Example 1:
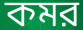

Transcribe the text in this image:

কমর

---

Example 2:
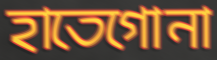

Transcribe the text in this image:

হাতেগোনা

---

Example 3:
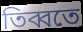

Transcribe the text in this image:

তিব্বতে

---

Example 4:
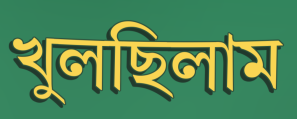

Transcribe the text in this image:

খুলছিলাম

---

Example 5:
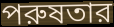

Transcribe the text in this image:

পরুষতার